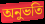
অনুভতি